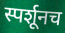
स्पर्शूनच